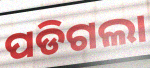
ପଡିଗଲା